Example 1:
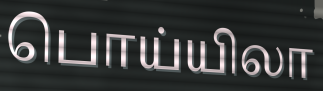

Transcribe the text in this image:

பொய்யிலா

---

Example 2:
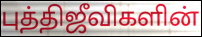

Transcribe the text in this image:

புத்திஜீவிகளின்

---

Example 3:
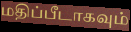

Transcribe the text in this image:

மதிப்பீடாகவும்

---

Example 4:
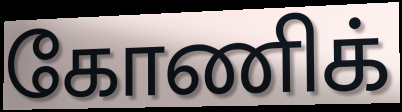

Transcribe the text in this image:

கோணிக்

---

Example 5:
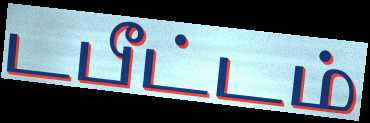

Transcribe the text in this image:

டபீட்டம்